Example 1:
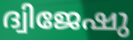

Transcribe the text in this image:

ദ്വിജേഷു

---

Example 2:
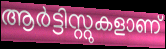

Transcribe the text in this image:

ആർട്ടിസ്റ്റുകളാണ്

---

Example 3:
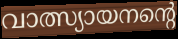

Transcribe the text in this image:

വാത്സ്യായനന്റെ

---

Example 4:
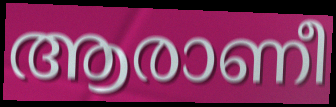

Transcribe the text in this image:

ആരാണീ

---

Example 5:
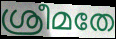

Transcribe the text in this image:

ശ്രീമതേ